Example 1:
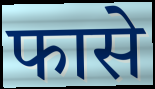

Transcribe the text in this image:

फासे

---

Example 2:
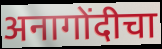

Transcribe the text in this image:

अनागोंदीचा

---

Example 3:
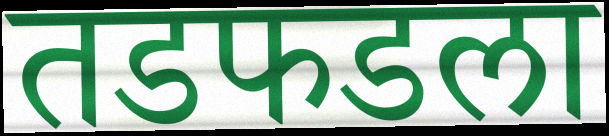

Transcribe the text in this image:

तडफडला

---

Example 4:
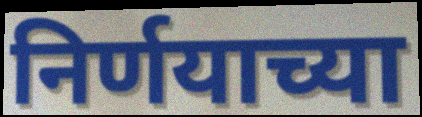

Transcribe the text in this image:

निर्णयाच्या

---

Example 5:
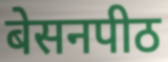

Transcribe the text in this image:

बेसनपीठ